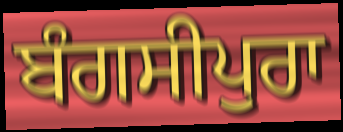
ਬੰਗਸੀਪੁਰਾ